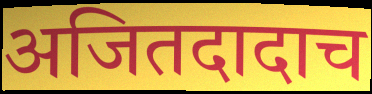
अजितदादाच